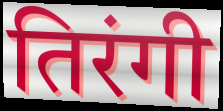
तिरंगी